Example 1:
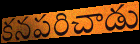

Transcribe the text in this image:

కనపరిచాడు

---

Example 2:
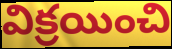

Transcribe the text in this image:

విక్రయించి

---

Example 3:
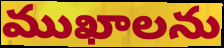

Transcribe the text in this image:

ముఖాలను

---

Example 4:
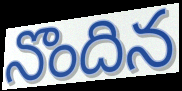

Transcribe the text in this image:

నొందిన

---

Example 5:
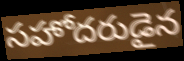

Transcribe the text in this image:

సహోదరుడైన